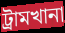
ট্রামখানা